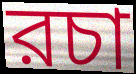
রচা